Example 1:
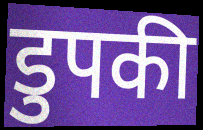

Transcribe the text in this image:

डुपकी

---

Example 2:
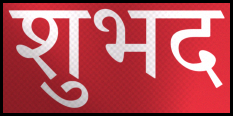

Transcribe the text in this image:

शुभद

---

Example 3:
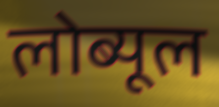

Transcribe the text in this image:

लोब्यूल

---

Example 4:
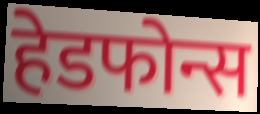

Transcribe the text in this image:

हेडफोन्स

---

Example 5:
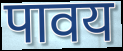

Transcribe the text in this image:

पावय